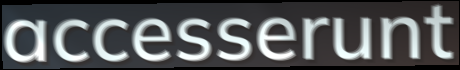
accesserunt